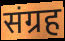
संग्रह